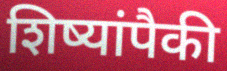
शिष्यांपैकी